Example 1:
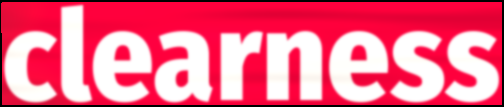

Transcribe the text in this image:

clearness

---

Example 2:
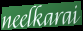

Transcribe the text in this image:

neelkarai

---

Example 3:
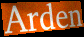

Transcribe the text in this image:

Arden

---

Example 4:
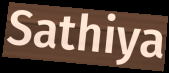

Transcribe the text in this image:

Sathiya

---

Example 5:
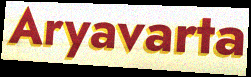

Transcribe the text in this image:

Aryavarta